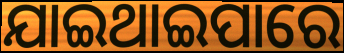
ଯାଇଥାଇପାରେ